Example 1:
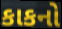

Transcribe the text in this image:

કાકનો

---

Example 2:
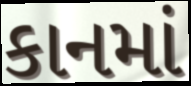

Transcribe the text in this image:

કાનમાં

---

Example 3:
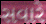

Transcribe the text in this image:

સવારે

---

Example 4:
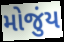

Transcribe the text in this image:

મોજુંય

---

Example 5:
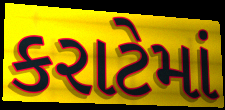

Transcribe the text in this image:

કરાટેમાં